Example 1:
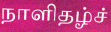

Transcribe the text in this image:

நாளிதழ்ச்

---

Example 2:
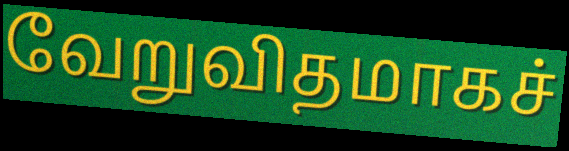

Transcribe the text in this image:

வேறுவிதமாகச்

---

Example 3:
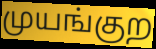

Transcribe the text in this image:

முயங்குற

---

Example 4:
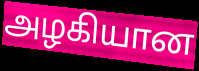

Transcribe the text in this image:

அழகியான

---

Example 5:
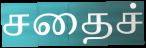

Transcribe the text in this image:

சதைச்